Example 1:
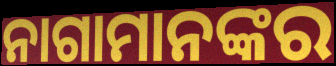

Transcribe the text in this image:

ନାଗାମାନଙ୍କର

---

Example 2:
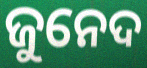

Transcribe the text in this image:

ଜୁନେଦ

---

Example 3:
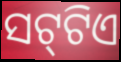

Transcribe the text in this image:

ସଟ୍‍ଟିଏ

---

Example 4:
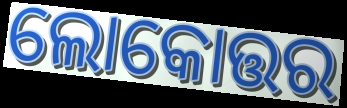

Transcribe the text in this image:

ଲୋକୋତ୍ତର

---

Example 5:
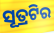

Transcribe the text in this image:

ସୂତ୍ରଟିର